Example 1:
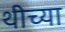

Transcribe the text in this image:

थीच्या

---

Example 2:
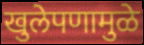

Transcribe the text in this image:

खुलेपणामुळे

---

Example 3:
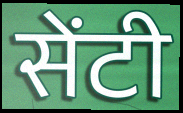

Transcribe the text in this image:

सेंटी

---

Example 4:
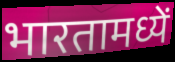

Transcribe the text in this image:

भारतामध्यें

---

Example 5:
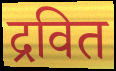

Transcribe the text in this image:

द्रवित